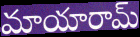
మాయారామ్